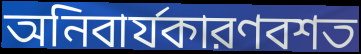
অনিবার্যকারণবশত